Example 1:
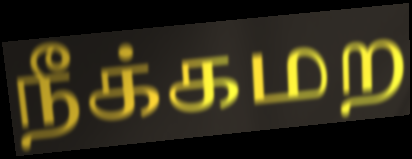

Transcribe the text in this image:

நீக்கமற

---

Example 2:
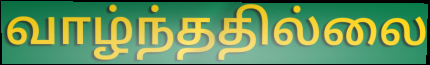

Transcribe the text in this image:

வாழ்ந்ததில்லை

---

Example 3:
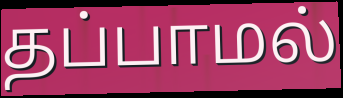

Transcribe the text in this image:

தப்பாமல்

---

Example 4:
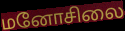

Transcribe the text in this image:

மனோசிலை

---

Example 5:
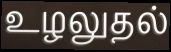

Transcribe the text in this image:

உழலுதல்